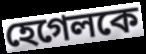
হেগেলকে